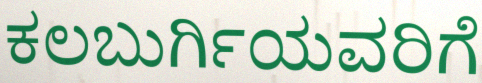
ಕಲಬುರ್ಗಿಯವರಿಗೆ